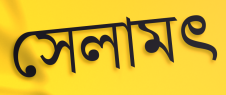
সেলামৎ